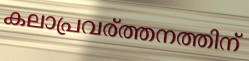
കലാപ്രവര്ത്തനത്തിന്